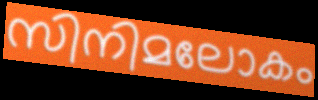
സിനിമലോകം